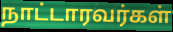
நாட்டாரவர்கள்